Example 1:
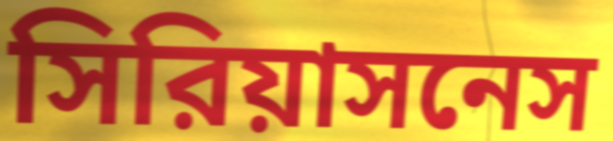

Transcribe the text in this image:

সিরিয়াসনেস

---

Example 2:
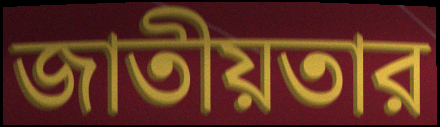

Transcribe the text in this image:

জাতীয়তার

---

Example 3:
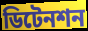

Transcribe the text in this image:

ডিটেনশন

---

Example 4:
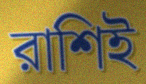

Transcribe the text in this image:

রাশিই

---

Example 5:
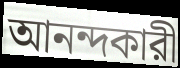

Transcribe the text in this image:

আনন্দকারী